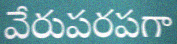
వేరుపరపగా